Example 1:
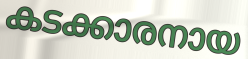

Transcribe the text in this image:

കടക്കാരനായ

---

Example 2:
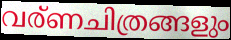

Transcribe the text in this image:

വര്ണചിത്രങ്ങളും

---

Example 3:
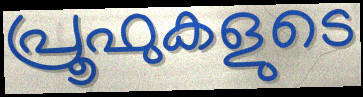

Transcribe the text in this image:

പ്രൂഫുകളുടെ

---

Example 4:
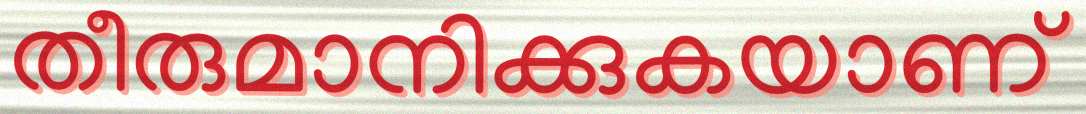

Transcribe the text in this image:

തീരുമാനിക്കുകയാണ്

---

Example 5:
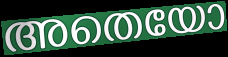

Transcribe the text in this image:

അതെയോ